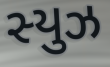
સ્યુઝ